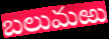
బలుమఱు